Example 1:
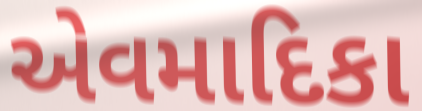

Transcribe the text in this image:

એવમાદિકા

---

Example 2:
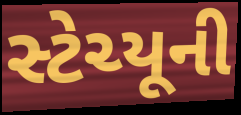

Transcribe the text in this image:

સ્ટેચ્યૂની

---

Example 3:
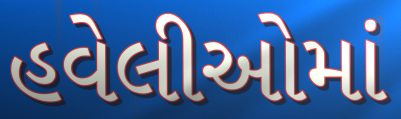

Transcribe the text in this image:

હવેલીઓમાં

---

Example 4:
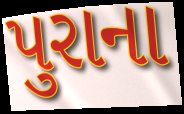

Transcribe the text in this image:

પુરાના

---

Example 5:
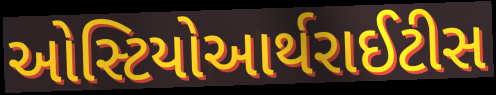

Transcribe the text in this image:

ઓસ્ટિયોઆર્થરાઈટીસ